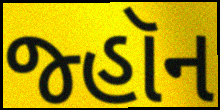
જ્હૉન